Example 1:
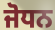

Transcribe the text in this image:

ਜੋਧਨ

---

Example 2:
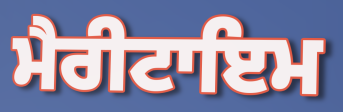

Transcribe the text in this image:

ਮੈਰੀਟਾਇਮ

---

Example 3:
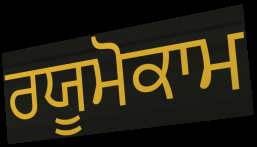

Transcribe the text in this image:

ਰਯੂਮੋਕਾਮ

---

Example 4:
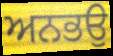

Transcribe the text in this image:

ਅਨਭਉ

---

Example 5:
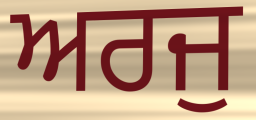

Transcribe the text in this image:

ਅਰਜੁ